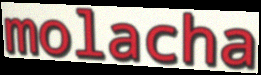
molacha